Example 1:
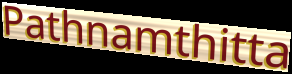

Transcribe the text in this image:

Pathnamthitta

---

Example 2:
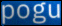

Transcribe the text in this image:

pogu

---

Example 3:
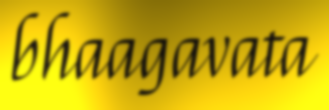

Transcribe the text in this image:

bhaagavata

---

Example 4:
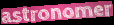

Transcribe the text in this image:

astronomer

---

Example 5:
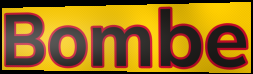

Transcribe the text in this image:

Bombe